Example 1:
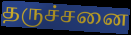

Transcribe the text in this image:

தருச்சனை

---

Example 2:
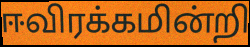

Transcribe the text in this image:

ஈவிரக்கமின்றி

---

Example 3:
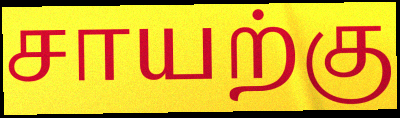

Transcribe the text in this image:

சாயற்கு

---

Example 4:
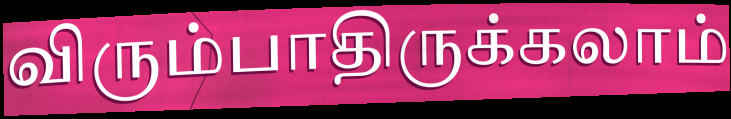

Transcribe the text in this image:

விரும்பாதிருக்கலாம்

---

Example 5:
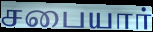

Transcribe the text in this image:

சபையார்